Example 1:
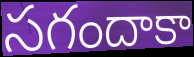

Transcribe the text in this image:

సగందాకా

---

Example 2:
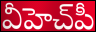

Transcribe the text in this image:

వీహెచ్‌పీ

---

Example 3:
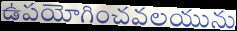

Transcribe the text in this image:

ఉపయోగించవలయును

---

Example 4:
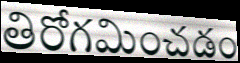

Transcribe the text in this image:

తిరోగమించడం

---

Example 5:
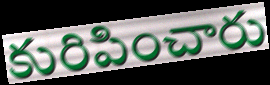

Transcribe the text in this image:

కురిపించారు